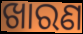
ଖାରଣ